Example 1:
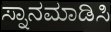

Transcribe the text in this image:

ಸ್ನಾನಮಾಡಿಸಿ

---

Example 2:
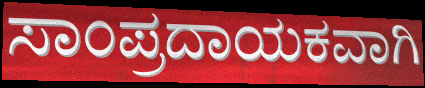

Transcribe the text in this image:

ಸಾಂಪ್ರದಾಯಕವಾಗಿ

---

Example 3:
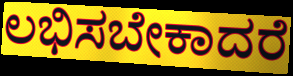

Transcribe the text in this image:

ಲಭಿಸಬೇಕಾದರೆ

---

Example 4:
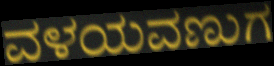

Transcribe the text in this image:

ವಳಯವಣುಗ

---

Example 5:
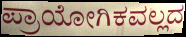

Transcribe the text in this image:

ಪ್ರಾಯೋಗಿಕವಲ್ಲದ